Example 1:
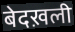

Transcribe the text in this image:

बेदख़ली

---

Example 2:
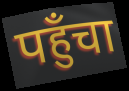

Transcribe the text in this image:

पहुँचा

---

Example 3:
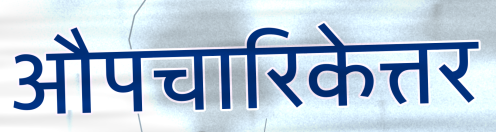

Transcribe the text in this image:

औपचारिकेत्तर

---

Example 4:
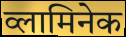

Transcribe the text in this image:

व्लामिनेक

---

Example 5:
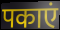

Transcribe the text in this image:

पकाएं